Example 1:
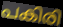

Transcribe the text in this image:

പകിരി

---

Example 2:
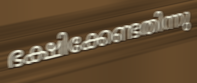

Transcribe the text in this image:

ഭക്ഷിക്കേണ്ടതിന്നു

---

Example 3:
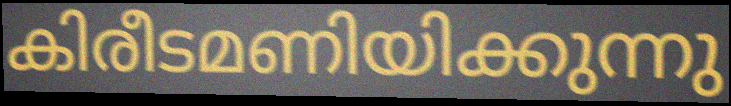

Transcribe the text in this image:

കിരീടമണിയിക്കുന്നു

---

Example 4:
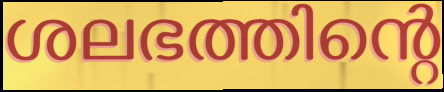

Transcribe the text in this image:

ശലഭത്തിന്റെ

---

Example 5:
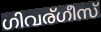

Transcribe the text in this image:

ഗിവര്ഗീസ്